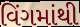
વિંગમાંથી